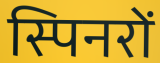
स्पिनरों